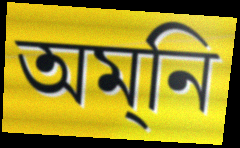
অম্‌নি